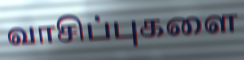
வாசிப்புகளை